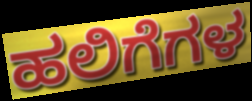
ಹಲಿಗೆಗಳ